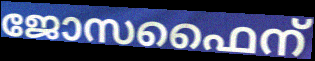
ജോസഫൈന്